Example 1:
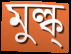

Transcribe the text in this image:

মুল্ক্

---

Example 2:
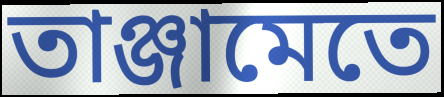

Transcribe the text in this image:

তাঞ্জামেতে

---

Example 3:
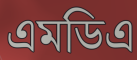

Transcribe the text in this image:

এমডিএ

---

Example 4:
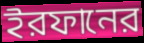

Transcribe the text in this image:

ইরফানের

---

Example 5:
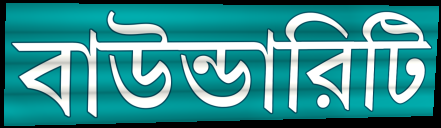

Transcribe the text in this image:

বাউন্ডারিটি